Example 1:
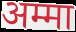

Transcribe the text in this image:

अम्मा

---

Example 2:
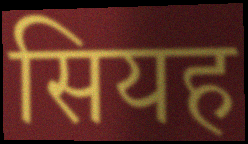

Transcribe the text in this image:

सियह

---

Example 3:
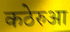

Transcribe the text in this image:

कठेरुआ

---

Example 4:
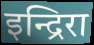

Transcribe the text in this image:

इन्द्रिरा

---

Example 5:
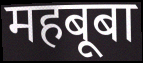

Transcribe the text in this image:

महबूबा